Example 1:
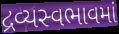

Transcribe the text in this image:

દ્રવ્યસ્વભાવમાં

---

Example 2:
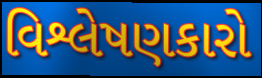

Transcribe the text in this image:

વિશ્લેષણકારો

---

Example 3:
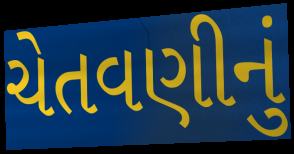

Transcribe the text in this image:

ચેતવણીનું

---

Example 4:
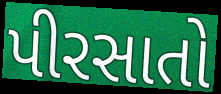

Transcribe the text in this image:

પીરસાતો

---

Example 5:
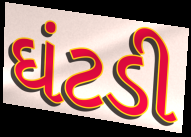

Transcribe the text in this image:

ઘંટડી